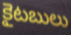
కైటబులు